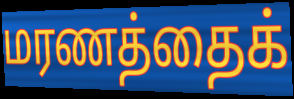
மரணத்தைக்